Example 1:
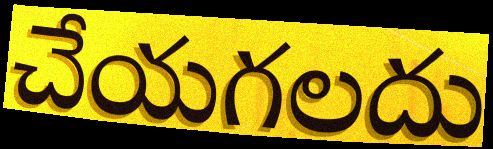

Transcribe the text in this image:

చేయగలదు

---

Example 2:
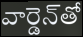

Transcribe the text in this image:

వార్డెన్‌తో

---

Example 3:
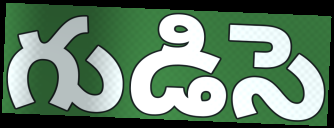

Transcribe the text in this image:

గుడిసె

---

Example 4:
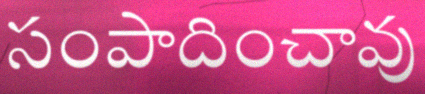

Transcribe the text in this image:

సంపాదించావు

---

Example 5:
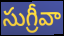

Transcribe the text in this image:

సుగ్రీవా